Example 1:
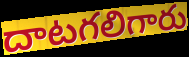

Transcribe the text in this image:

దాటగలిగారు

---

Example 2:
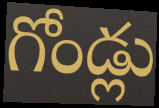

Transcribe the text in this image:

గోండ్లు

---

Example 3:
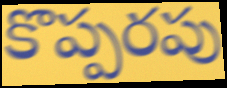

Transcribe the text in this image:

కొప్పరపు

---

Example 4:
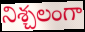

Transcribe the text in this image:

నిశ్చలంగా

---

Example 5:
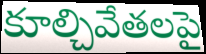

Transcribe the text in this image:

కూల్చివేతలపై